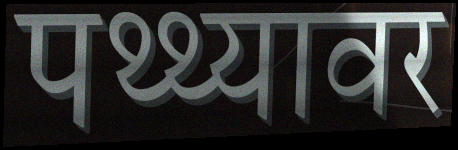
पथ्थ्यावर